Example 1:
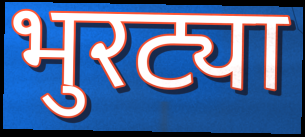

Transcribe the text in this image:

भुरट्या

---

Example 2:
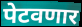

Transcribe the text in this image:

पेटवणार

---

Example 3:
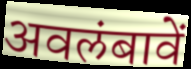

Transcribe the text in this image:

अवलंबावें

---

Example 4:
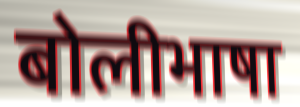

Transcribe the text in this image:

बोलीभाषा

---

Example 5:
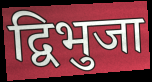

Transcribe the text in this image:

द्विभुजा